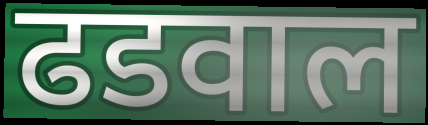
ढडवाल